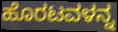
ಹೊರಟವಳನ್ನ